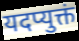
यदप्युक्तं